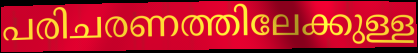
പരിചരണത്തിലേക്കുള്ള